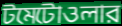
টমেটোওলার